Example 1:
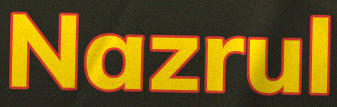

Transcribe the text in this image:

Nazrul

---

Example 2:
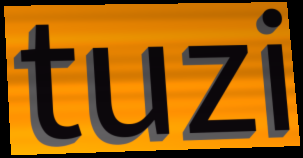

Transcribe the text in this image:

tuzi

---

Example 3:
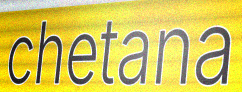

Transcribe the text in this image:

chetana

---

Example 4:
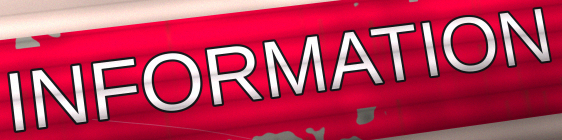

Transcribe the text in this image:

INFORMATION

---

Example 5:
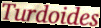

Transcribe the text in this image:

Turdoides